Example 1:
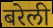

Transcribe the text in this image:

बरेली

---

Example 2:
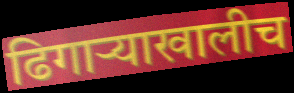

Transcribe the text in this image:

ढिगाऱ्याखालीच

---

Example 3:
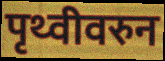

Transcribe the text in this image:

पृथ्वीवरुन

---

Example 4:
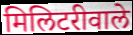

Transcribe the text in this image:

मिलिटरीवाले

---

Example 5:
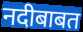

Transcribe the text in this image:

नदीबाबत